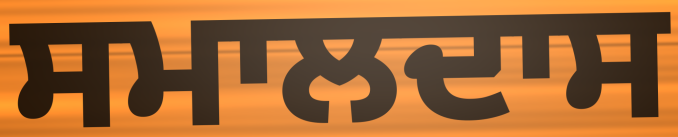
ਸਮਾਲਦਾਸ